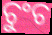
ଚୁଂଚ